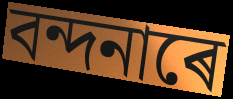
বন্দনাৰে